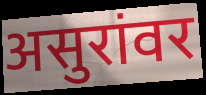
असुरांवर